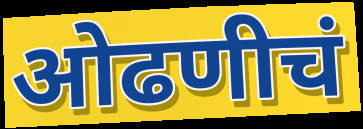
ओढणीचं